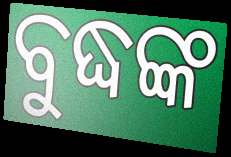
ବୁଦ୍ଧଙ୍କ